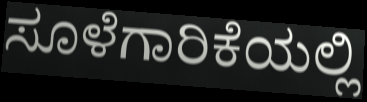
ಸೂಳೆಗಾರಿಕೆಯಲ್ಲಿ